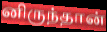
னிருந்தான்